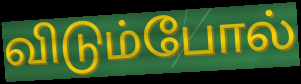
விடும்போல்